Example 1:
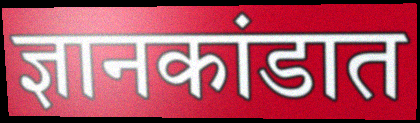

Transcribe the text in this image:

ज्ञानकांडात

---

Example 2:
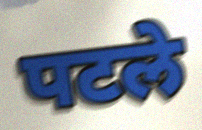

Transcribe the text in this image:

पटले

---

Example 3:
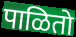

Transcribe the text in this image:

पाळितो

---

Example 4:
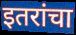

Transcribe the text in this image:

इतरांचा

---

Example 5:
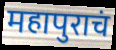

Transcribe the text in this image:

महापुराचं